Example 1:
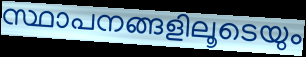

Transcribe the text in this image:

സ്ഥാപനങ്ങളിലൂടെയും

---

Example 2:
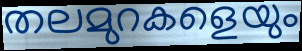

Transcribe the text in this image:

തലമുറകളെയും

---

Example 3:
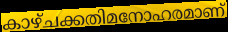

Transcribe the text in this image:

കാഴ്ചക്കതിമനോഹരമാണ്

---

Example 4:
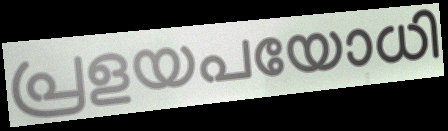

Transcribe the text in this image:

പ്രളയപയോധി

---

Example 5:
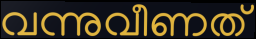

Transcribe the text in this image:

വന്നുവീണത്